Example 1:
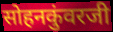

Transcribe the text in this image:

सोहनकुंवरजी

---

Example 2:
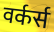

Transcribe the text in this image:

वर्कर्स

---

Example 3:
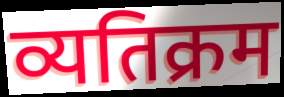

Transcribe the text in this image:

व्यतिक्रम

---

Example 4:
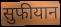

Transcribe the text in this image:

सुफीयान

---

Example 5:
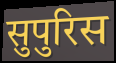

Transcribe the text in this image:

सुपुरिस